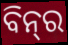
ବିନ୍‍ର